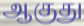
ஆகுது